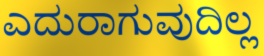
ಎದುರಾಗುವುದಿಲ್ಲ